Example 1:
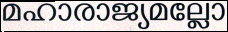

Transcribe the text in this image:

മഹാരാജ്യമല്ലോ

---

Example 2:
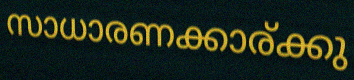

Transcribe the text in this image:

സാധാരണക്കാര്ക്കു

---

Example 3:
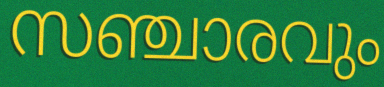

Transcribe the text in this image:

സഞ്ചാരവും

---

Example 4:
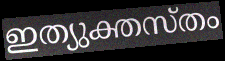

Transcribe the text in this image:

ഇത്യുക്തസ്തം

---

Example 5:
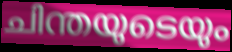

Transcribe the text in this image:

ചിന്തയുടെയും